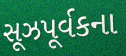
સૂઝપૂર્વકના